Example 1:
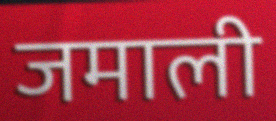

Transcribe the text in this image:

जमाली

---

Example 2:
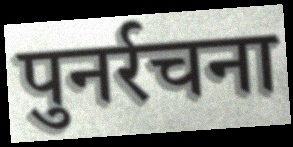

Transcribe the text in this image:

पुनर्रचना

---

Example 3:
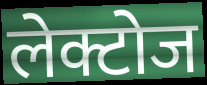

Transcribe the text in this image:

लेक्टोज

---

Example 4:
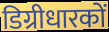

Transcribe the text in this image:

डिग्रीधारकों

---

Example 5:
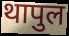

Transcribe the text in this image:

थापुल